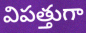
విపత్తుగా